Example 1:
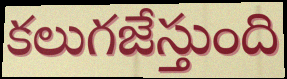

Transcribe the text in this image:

కలుగజేస్తుంది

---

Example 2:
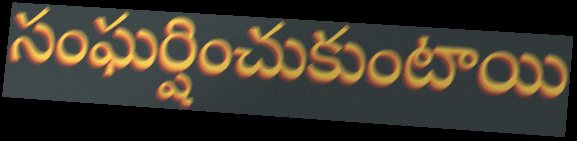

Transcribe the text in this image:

సంఘర్షించుకుంటాయి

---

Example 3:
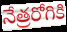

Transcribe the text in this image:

నేత్రరోగికి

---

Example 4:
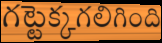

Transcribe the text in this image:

గట్టెక్కగలిగింది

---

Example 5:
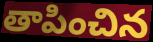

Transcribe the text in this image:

తాపించిన